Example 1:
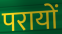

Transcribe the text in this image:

परायों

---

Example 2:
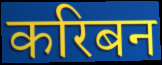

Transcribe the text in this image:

करिबन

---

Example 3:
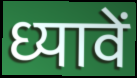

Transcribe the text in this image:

ध्यावें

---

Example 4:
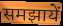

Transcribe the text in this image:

समझायें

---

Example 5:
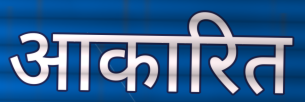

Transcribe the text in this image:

आकारित